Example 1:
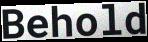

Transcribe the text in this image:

Behold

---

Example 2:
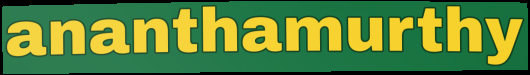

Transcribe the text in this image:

ananthamurthy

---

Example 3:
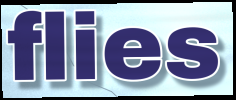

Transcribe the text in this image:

flies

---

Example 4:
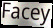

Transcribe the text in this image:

Facey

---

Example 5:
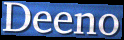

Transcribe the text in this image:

Deeno